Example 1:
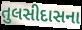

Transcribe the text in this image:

તુલસીદાસના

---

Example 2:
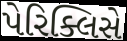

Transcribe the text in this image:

પેરિક્લિસે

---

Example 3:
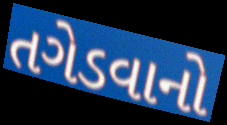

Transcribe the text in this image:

તગેડવાનો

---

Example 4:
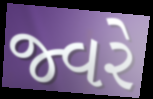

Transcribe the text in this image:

જ્વરે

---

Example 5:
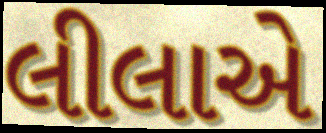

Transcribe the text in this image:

લીલાએ